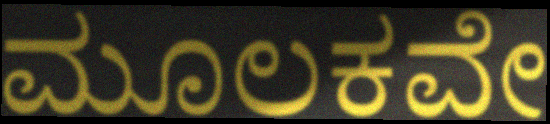
ಮೂಲಕವೇ